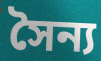
সৈন্য